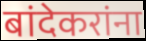
बांदेकरांना